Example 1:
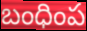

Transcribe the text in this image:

బంధింప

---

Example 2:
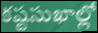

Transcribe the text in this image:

కష్టసుఖాల్లో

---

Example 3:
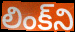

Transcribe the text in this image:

లింక్‌ని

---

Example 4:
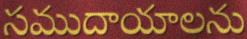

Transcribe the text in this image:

సముదాయాలను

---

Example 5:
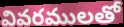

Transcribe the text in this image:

వివరములతో